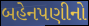
બહેનપણીનો